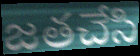
జతచేసి